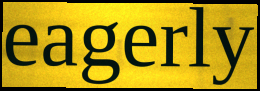
eagerly